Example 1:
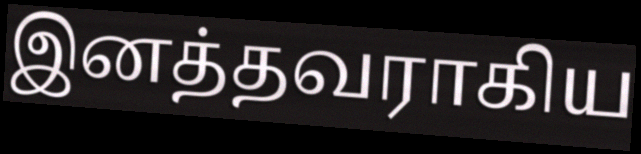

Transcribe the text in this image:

இனத்தவராகிய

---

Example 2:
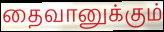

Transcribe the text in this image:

தைவானுக்கும்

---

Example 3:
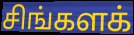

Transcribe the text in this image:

சிங்களக்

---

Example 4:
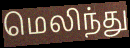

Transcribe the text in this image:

மெலிந்து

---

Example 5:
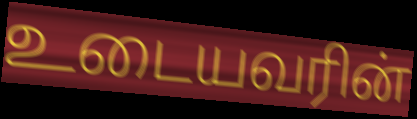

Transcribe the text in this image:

உடையவரின்